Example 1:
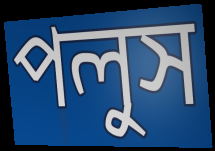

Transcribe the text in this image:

পলুস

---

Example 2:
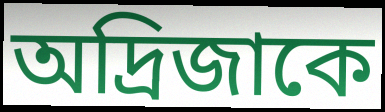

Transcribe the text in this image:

অদ্রিজাকে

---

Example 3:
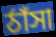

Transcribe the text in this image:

ঠাঁসা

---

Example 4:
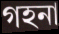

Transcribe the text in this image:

গহনা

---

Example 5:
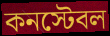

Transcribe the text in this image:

কনস্টেবল